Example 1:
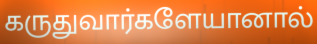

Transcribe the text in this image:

கருதுவார்களேயானால்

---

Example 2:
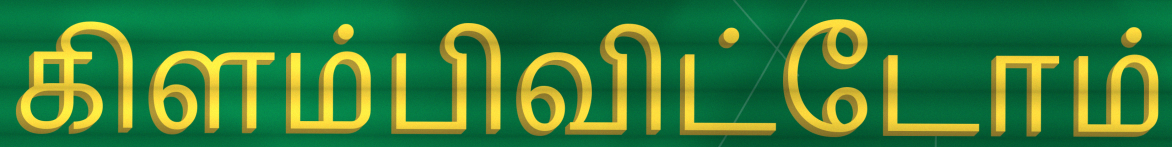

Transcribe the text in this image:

கிளம்பிவிட்டோம்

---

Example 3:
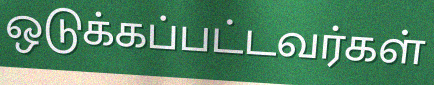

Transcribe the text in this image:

ஒடுக்கப்பட்டவர்கள்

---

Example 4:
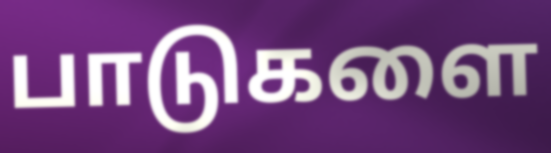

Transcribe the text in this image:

பாடுகளை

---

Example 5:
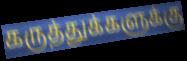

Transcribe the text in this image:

கருத்துக்களுக்கு